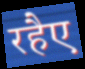
रहैए